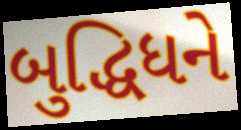
બુદ્ધિધને